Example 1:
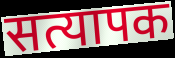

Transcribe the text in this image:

सत्यापक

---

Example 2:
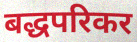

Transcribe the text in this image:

बद्धपरिकर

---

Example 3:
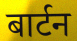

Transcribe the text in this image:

बार्टन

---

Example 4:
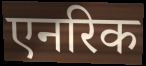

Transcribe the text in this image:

एनरिक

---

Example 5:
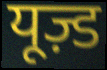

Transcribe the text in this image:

यूज़्ड